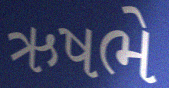
ઋષભે